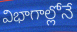
విభాగాల్లోనే